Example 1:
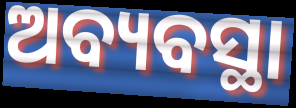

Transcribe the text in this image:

ଅବ୍ୟବସ୍ଥା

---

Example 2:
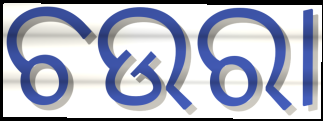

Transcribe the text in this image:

ଚଉରା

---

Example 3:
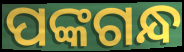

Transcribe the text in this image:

ପଙ୍କଗନ୍ଧ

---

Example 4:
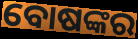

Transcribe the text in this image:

ବୋଷଙ୍କର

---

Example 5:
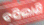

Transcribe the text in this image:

ବସିଲାଣି